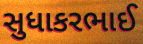
સુધાકરભાઈ